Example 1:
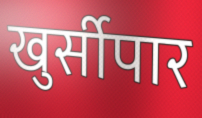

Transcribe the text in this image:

खुर्सीपार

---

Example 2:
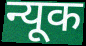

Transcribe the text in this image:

न्यूक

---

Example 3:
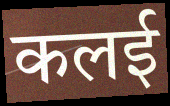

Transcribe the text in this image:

कलई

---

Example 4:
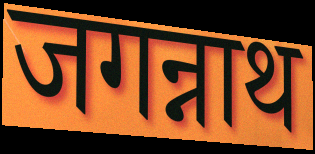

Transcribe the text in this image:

जगन्नाथ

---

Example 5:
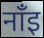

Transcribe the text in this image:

नाँइ